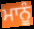
ਮਾਨੂੰ